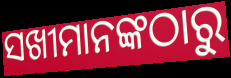
ସଖୀମାନଙ୍କଠାରୁ